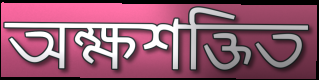
অক্ষশক্তিত